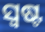
ସ୍ୱଷ୍ଟ